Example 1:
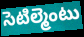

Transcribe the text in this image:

సెటిల్మెంటు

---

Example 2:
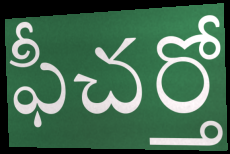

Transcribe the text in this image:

ఫీచర్తో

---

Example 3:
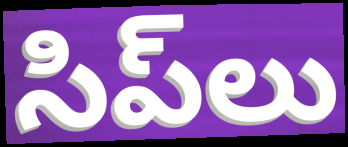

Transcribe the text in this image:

సిప్‌లు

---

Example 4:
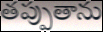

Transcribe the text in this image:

తప్పుతాను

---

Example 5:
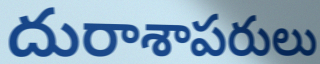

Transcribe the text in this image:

దురాశాపరులు